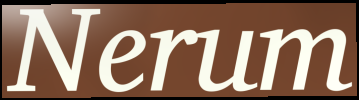
Nerum